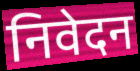
निवेदन